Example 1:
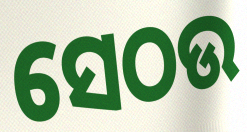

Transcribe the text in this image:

ସେଠଉ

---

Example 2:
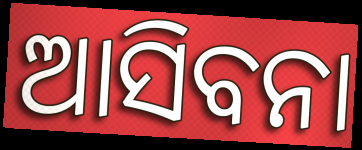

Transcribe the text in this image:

ଆସିବନା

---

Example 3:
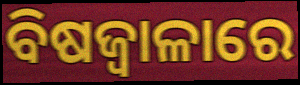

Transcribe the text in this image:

ବିଷଜ୍ୱାଳାରେ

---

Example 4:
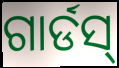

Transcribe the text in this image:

ଗାର୍ଡସ୍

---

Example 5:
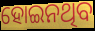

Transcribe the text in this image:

ହୋଇନଥିବ